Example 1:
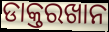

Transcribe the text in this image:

ଡାକ୍ତରଖାନ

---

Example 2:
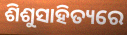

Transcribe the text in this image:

ଶିଶୁସାହିତ୍ୟରେ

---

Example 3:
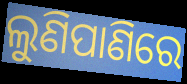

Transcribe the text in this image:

ଲୁଣିପାଣିରେ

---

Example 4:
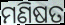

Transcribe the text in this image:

ମଣିଷତ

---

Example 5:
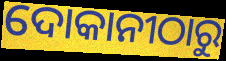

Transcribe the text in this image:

ଦୋକାନୀଠାରୁ